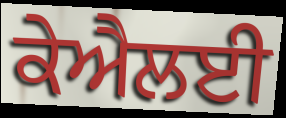
ਕੇਐਲਈ